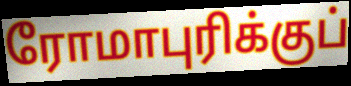
ரோமாபுரிக்குப்